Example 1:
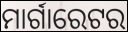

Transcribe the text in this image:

ମାର୍ଗାରେଟର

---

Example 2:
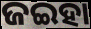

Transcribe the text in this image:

ଜଇହା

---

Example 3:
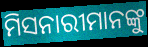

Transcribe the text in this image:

ମିସନାରୀମାନଙ୍କୁ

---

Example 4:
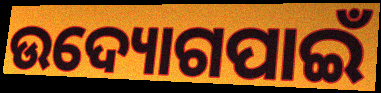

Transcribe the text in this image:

ଉଦ୍ୟୋଗପାଇଁ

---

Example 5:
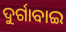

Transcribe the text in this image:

ଦୁର୍ଗାବାଇ